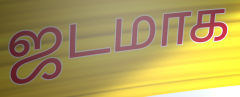
ஜடமாக